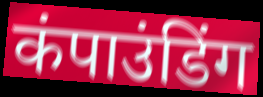
कंपाउंडिंग